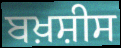
ਬਖ਼ਸ਼ੀਸ